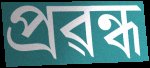
প্ৰৱন্ধ